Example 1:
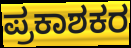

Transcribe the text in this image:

ಪ್ರಕಾಶಕರ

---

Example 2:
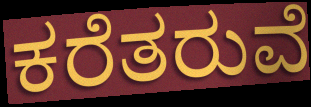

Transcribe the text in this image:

ಕರೆತರುವೆ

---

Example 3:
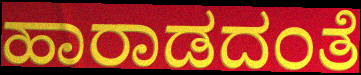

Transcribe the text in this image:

ಹಾರಾಡದಂತೆ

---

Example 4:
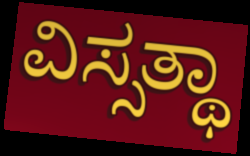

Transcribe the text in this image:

ವಿಸ್ಸತ್ಥಾ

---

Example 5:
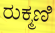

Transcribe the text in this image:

ರುಕ್ಮಣಿ